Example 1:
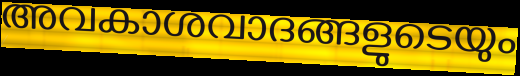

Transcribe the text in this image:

അവകാശവാദങ്ങളുടെയും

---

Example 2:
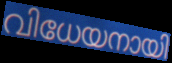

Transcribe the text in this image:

വിധേയനായി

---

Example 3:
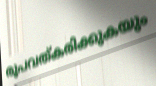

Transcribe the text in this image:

രൂപവത്കരിക്കുകയും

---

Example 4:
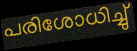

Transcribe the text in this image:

പരിശോധിച്ചു്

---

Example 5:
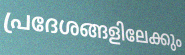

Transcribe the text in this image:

പ്രദേശങ്ങളിലേക്കും